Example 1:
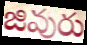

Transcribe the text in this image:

జివురు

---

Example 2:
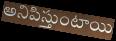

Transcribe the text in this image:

అనిపిస్తుంటాయి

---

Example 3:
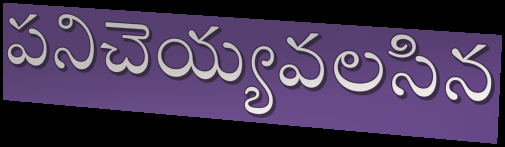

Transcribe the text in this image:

పనిచెయ్యవలసిన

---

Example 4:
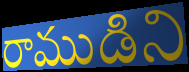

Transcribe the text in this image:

రాముడిని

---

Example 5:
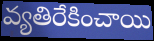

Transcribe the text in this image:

వ్యతిరేకించాయి